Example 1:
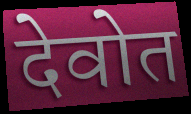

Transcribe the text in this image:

देवोत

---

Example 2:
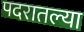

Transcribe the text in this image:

पदरातल्या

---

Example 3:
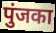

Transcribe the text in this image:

पुंजका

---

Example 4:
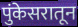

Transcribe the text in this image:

पुंकेसरातून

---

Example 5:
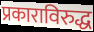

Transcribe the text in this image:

प्रकाराविरुद्ध